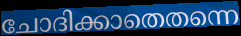
ചോദിക്കാതെതന്നെ